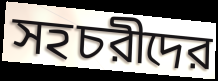
সহচরীদের